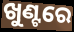
ଖୁଣ୍ଟରେ